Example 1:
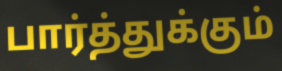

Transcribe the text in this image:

பார்த்துக்கும்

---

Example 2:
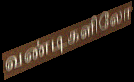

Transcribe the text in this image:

வண்டிகளிலோ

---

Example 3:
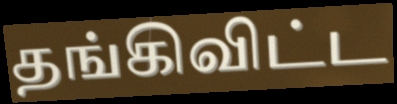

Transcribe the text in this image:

தங்கிவிட்ட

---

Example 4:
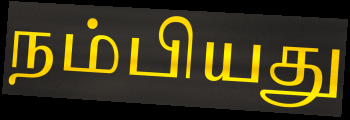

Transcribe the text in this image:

நம்பியது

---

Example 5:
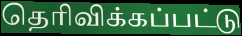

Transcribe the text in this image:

தெரிவிக்கப்பட்டு